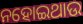
ନହୋଇଥାଉ